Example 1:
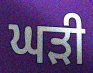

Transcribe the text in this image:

ਘਡ਼ੀ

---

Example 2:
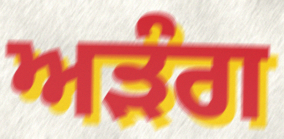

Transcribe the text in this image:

ਅੜੰਗ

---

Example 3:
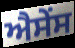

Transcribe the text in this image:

ਐਸੇਂਸ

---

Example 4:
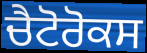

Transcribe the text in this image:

ਚੈਟੋਰੋਕਸ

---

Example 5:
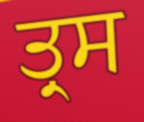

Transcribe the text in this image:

ਤ੍ਰਸ